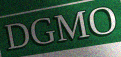
DGMO